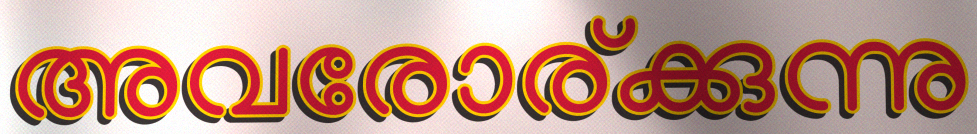
അവരോര്ക്കുന്നു